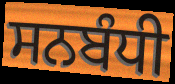
ਸਨਬੰਧੀ